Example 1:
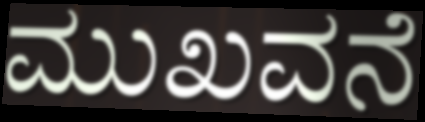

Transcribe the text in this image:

ಮುಖವನೆ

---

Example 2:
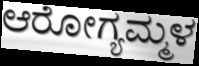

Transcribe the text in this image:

ಆರೋಗ್ಯಮ್ಮಳ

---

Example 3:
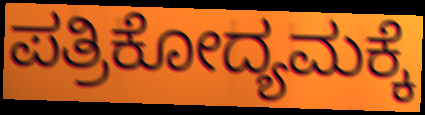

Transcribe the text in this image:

ಪತ್ರಿಕೋದ್ಯಮಕ್ಕೆ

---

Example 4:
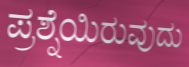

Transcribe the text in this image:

ಪ್ರಶ್ನೆಯಿರುವುದು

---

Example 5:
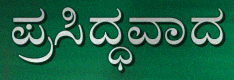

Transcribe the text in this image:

ಪ್ರಸಿದ್ಧವಾದ